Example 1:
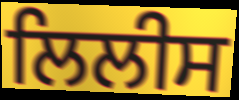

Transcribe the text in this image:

ਲਿਲੀਸ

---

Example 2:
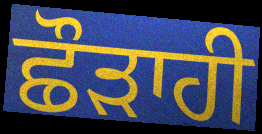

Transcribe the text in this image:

ਛੌੜਾਹੀ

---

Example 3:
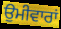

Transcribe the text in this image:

ਉਮੀਵਾਰਾਂ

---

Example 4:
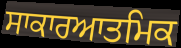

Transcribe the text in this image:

ਸਾਕਾਰਆਤਮਿਕ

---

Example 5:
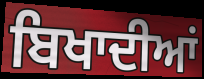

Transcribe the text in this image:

ਬਿਖਾਦੀਆਂ